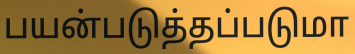
பயன்படுத்தப்படுமா